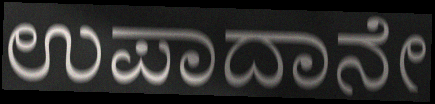
ಉಪಾದಾನೇ